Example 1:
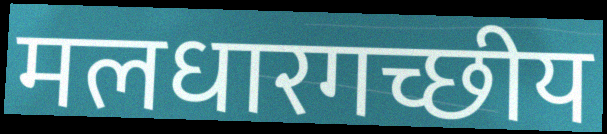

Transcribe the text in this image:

मलधारगच्छीय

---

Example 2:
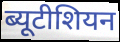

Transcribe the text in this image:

ब्यूटीशियन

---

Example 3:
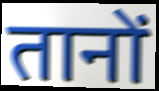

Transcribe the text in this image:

तानों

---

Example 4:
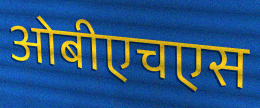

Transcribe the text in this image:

ओबीएचएस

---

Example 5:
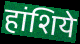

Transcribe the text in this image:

हांशिये